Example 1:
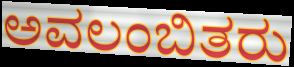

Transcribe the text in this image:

ಅವಲಂಬಿತರು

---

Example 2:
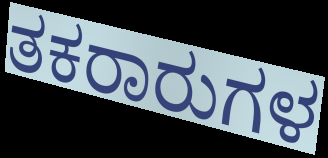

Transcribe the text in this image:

ತಕರಾರುಗಳ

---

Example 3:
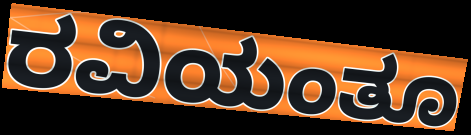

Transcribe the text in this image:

ರವಿಯಂತೂ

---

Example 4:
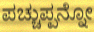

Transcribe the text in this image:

ಪಚ್ಚುಪ್ಪನ್ನೋ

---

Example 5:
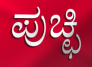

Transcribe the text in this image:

ಪುಚ್ಛಿ